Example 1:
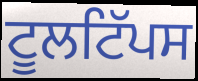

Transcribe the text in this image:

ਟੂਲਟਿੱਪਸ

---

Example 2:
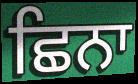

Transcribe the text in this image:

ਛਿਨਾ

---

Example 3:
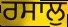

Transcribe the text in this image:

ਰਸਾਲੁ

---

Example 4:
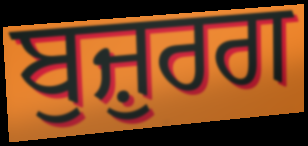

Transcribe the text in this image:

ਬੁਜ਼ੁਰਗ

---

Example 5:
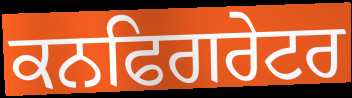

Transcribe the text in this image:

ਕਨਫਿਗਰੇਟਰ